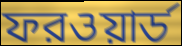
ফরওয়ার্ড